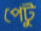
পেটু